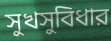
সুখসুবিধার